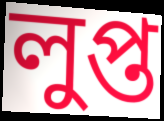
লুপ্ত